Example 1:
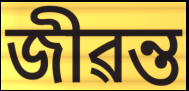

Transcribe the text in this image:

জীৱন্ত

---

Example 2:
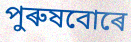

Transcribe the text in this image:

পুৰুষবোৰে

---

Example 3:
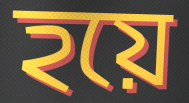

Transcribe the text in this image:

হয়ে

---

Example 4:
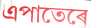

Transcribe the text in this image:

এপাতেৰে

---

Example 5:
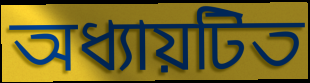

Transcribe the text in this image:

অধ্যায়টিত